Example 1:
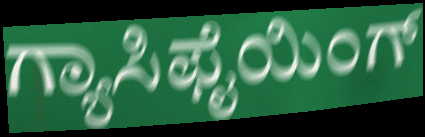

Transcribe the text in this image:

ಗ್ಯಾಸಿಫೈಯಿಂಗ್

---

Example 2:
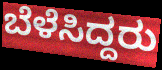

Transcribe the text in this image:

ಬೆಳೆಸಿದ್ದರು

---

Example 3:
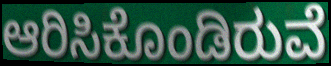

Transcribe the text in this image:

ಆರಿಸಿಕೊಂಡಿರುವೆ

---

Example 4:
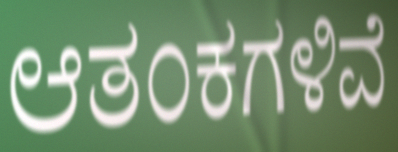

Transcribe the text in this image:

ಆತಂಕಗಳಿವೆ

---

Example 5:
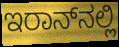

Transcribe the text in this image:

ಇರಾನ್‌ನಲ್ಲಿ